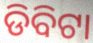
ଡିବିଟା